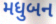
મધુબન